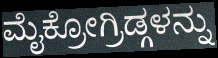
ಮೈಕ್ರೋಗ್ರಿಡ್ಗಳನ್ನು